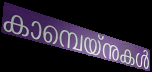
കാമ്പെയ്നുകൾ